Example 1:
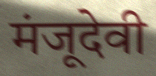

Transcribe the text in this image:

मंजूदेवी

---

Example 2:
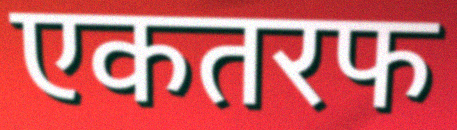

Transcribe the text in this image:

एकतरफ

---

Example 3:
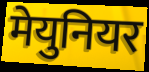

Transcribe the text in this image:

मेयुनियर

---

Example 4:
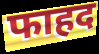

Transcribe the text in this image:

फाहद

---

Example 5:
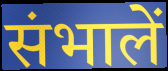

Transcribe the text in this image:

संभालें